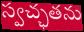
స్వచ్ఛతను